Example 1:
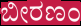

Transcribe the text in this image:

ಬೀರಣಂ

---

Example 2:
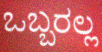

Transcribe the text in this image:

ಒಬ್ಬರಲ್ಲ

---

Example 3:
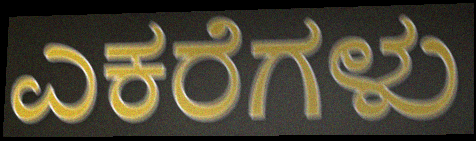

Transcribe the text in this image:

ಎಕರೆಗಳು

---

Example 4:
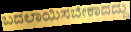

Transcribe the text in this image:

ಬದಲಾಯಿಸಬೇಕಾದದ್ದು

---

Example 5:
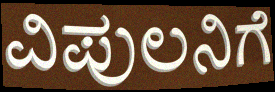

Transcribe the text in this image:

ವಿಪುಲನಿಗೆ